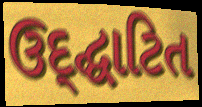
ઉદ્દ્ઘાટિત